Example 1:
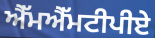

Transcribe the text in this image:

ਐੱਮਐੱਮਟੀਪੀਏ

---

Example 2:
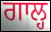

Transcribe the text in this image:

ਗਾਲ੍ਹ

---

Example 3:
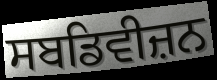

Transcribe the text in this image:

ਸਬਡਿਵੀਜ਼ਨ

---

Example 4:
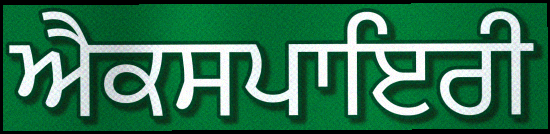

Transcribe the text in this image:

ਐਕਸਪਾਇਰੀ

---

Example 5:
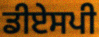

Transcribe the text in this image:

ਡੀਏਸਪੀ